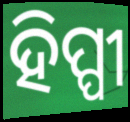
ହିପ୍ପୀ